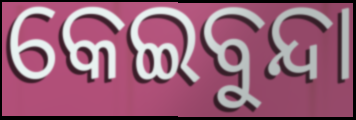
କେଇବୁନ୍ଦା